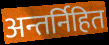
अन्तर्निहित